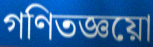
গণিতজ্ঞয়ো